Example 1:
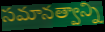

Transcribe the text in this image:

సమానత్వాన్ని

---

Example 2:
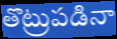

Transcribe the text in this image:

తొట్రుపడినా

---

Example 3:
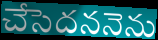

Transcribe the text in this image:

చేసెదననెను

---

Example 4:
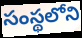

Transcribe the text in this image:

సంస్థలోని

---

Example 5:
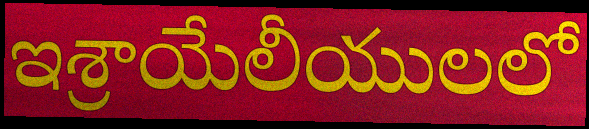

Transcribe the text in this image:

ఇశ్రాయేలీయులలో